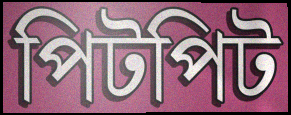
পিটপিট